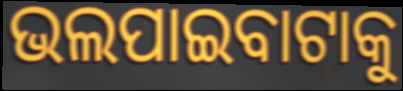
ଭଲପାଇବାଟାକୁ